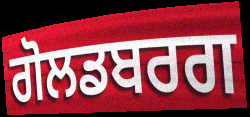
ਗੋਲਡਬਰਗ